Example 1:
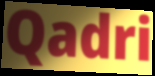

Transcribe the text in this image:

Qadri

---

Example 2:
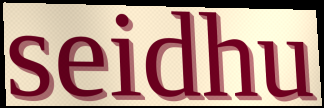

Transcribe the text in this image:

seidhu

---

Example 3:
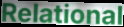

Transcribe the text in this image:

Relational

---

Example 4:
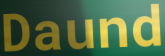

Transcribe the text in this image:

Daund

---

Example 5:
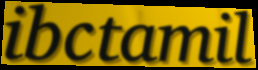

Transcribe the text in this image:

ibctamil